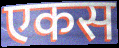
एकस